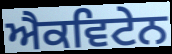
ਐਕਵਿਟੇਨ